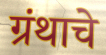
ग्रंथाचे